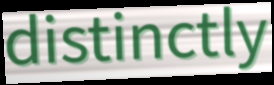
distinctly